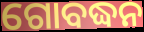
ଗୋବଦ୍ଧନ